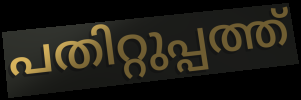
പതിറ്റുപ്പത്ത്